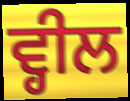
ਵ੍ਹੀਲ